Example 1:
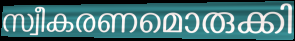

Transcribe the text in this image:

സ്വീകരണമൊരുക്കി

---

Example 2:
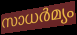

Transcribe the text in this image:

സാധർമ്യം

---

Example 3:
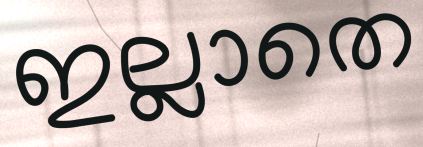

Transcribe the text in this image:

ഇല്ലാതെ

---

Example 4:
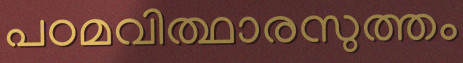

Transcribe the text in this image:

പഠമവിത്ഥാരസുത്തം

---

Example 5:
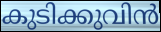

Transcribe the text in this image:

കുടിക്കുവിൻ